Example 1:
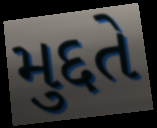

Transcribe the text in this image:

મુદ્દતે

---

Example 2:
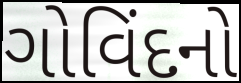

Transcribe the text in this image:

ગોવિંદનો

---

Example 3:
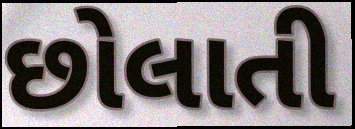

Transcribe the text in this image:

છોલાતી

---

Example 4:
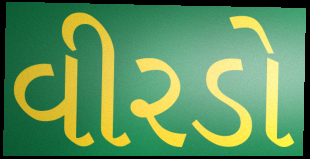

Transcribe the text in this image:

વીરડો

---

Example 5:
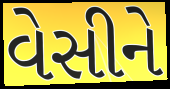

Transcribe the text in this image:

વેસીને